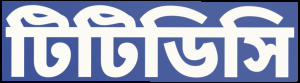
টিটিডিসি